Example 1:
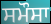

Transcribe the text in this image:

ਸਮੌਸਾ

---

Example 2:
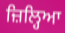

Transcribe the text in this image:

ਜ਼ਿਲ੍ਹਿਆ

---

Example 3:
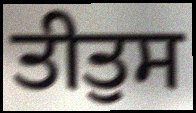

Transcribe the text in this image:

ਤੀਤੁਸ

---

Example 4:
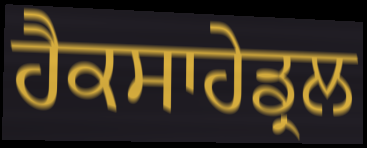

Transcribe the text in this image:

ਹੈਕਸਾਹੇਡ੍ਰਲ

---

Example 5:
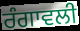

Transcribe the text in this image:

ਰੰਗਾਵਲੀ